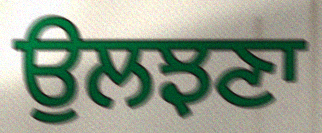
ਉਲਝਣਾ